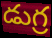
డుగ్ర